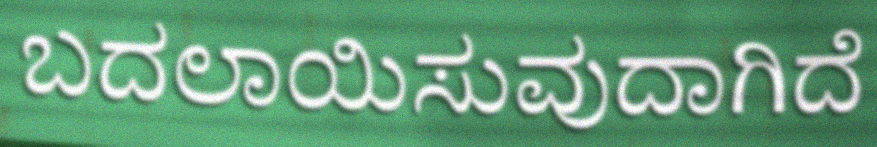
ಬದಲಾಯಿಸುವುದಾಗಿದೆ